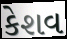
કેશવ